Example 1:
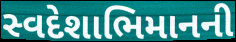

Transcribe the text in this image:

સ્વદેશાભિમાનની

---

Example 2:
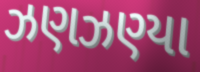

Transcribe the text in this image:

ઝણઝણ્યા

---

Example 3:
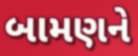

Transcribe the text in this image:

બામણને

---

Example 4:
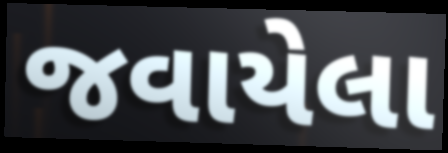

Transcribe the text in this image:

જવાયેલા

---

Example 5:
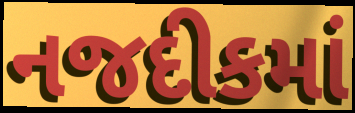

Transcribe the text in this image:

નજદીકમાં